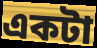
একটা